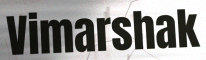
Vimarshak